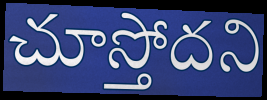
చూస్తోదని